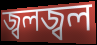
জ্বলজ্বল